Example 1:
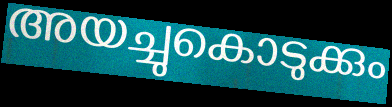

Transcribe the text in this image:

അയച്ചുകൊടുക്കും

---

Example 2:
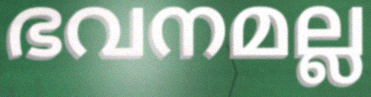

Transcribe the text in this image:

ഭവനമല്ല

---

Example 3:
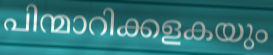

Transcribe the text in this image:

പിന്മാറിക്കളകയും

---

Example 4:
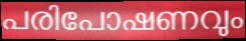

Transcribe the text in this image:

പരിപോഷണവും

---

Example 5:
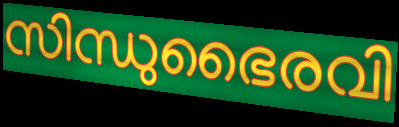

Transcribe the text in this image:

സിന്ധുഭൈരവി